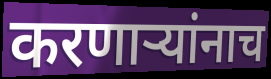
करणार्‍यांनाच